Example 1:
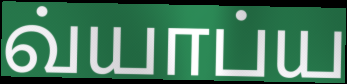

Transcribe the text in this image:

வ்யாப்ய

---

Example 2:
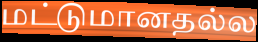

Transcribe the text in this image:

மட்டுமானதல்ல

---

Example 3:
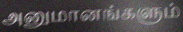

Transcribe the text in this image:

அனுமானங்களும்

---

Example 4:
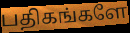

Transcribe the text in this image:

பதிகங்களே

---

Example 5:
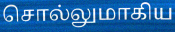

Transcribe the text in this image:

சொல்லுமாகிய